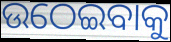
ଉଠେଇବାକୁ